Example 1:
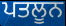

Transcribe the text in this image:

ਪਤਲੂਨ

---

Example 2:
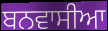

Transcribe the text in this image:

ਬਨਵਾਸੀਆ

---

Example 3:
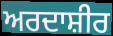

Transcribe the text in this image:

ਅਰਦਾਸ਼ੀਰ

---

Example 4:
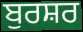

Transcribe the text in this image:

ਬੁਰਸ਼ਰ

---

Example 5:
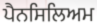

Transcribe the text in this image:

ਪੈਨਸਿਲਿਅਮ